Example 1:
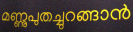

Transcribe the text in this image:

മണ്ണുപുതച്ചുറങ്ങാൻ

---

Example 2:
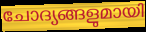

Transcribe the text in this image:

ചോദ്യങ്ങളുമായി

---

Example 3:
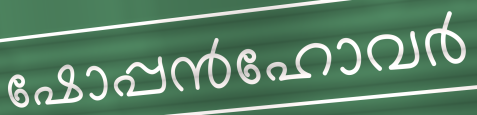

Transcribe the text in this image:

ഷോപ്പൻഹോവർ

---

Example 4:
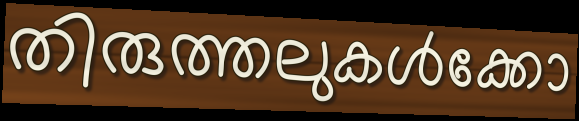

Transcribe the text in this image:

തിരുത്തലുകൾക്കോ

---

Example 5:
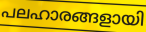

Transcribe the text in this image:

പലഹാരങ്ങളായി